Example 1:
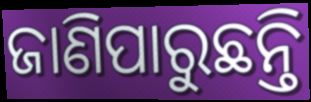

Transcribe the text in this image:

ଜାଣିପାରୁଛନ୍ତି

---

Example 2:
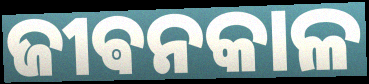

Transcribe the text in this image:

ଜୀଵନକାଳ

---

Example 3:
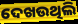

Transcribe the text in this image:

ଦେଖଉଥିଲି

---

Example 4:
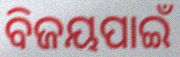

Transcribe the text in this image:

ବିଜୟପାଇଁ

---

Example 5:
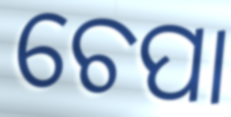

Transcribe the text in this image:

ଚେପା